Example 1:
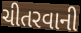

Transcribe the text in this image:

ચીતરવાની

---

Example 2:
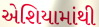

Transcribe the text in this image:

એશિયામાંથી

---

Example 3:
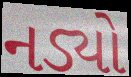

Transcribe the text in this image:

નડ્યો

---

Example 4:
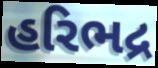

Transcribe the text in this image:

હરિભદ્ર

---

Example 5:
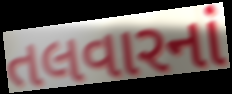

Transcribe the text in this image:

તલવારનાં